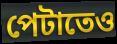
পেটাতেও